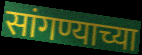
सांगण्याच्या